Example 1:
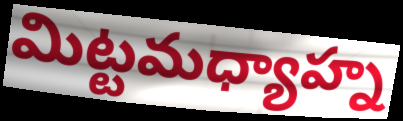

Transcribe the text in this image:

మిట్టమధ్యాహ్న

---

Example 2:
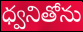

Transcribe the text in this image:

ధ్వనితోను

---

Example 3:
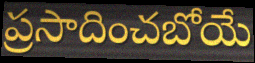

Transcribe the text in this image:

ప్రసాదించబోయే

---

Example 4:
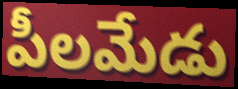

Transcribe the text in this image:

పీలమేడు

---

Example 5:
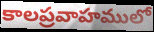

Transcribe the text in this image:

కాలప్రవాహములో